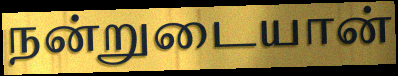
நன்றுடையான்